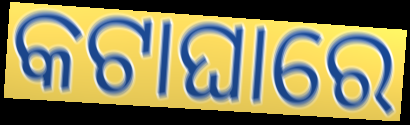
କଟାଘାରେ